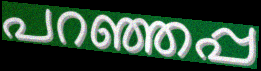
പറഞ്ഞപ്പ